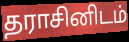
தராசினிடம்